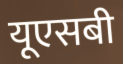
यूएसबी